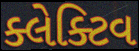
ક્લેક્ટિવ